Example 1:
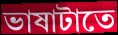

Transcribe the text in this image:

ভাষাটাতে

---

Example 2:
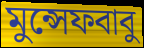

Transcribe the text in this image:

মুন্সেফবাবু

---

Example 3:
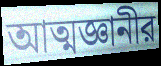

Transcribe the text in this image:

আত্মজ্ঞানীর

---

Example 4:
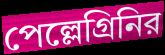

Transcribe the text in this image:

পেল্লেগ্রিনির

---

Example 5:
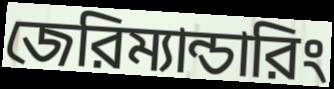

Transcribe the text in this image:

জেরিম্যান্ডারিং